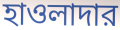
হাওলাদার